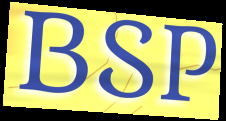
BSP